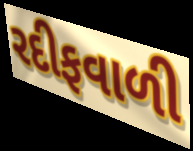
રદીફવાળી